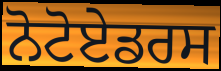
ਨੋਟੋਏਡਰਸ